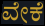
ವೇಕೆ